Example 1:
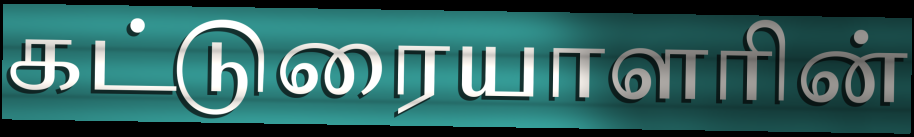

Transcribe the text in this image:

கட்டுரையாளரின்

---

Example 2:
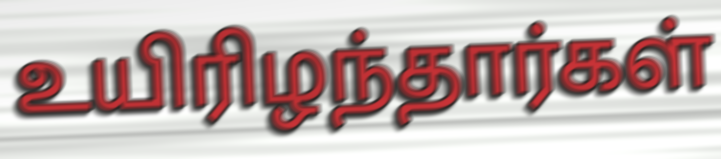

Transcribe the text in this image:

உயிரிழந்தார்கள்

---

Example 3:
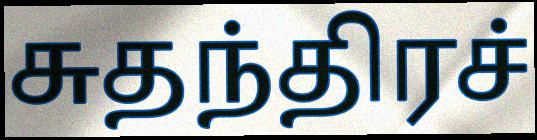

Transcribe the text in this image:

சுதந்திரச்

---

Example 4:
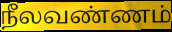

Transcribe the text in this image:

நீலவண்ணம்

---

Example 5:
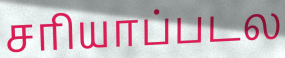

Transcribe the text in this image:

சரியாப்படல